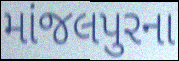
માંજલપુરના